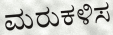
ಮರುಕಳಿಸ